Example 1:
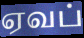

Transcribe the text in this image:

ஏவப்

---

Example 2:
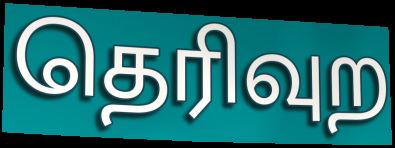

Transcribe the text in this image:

தெரிவுற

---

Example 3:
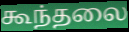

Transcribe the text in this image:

கூந்தலை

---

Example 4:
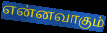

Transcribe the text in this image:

என்னவாகும்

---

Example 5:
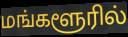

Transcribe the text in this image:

மங்களூரில்